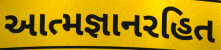
આત્મજ્ઞાનરહિત